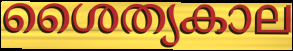
ശൈത്യകാല